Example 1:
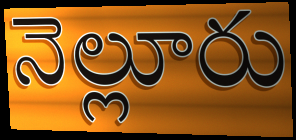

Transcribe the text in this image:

నెల్లూరు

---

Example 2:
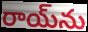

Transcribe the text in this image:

రాయ్‌ను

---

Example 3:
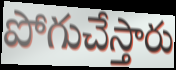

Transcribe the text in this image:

పోగుచేస్తారు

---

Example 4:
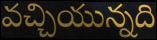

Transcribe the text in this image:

వచ్చియున్నది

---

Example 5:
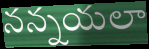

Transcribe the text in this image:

నన్నయలా